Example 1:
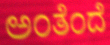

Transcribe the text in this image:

ಅಂತೆಂದೆ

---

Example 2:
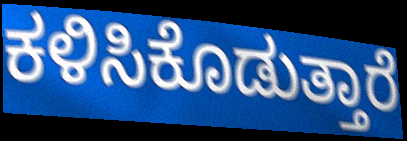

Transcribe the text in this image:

ಕಳಿಸಿಕೊಡುತ್ತಾರೆ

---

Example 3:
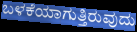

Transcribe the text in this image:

ಬಳಕೆಯಾಗುತ್ತಿರುವುದು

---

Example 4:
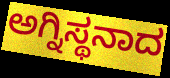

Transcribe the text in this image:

ಅಗ್ನಿಸ್ಥನಾದ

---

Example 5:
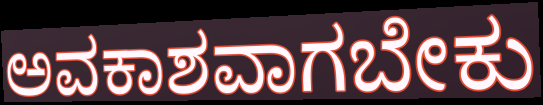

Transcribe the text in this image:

ಅವಕಾಶವಾಗಬೇಕು